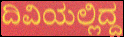
ದಿವಿಯಲ್ಲಿದ್ದ